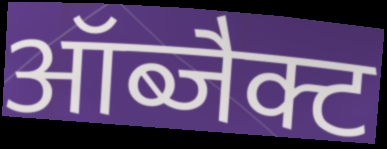
ऑब्जैक्ट